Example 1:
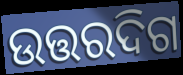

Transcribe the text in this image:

ଉତ୍ତରଦିଗ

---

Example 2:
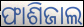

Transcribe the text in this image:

ଫାଶିଜାଲ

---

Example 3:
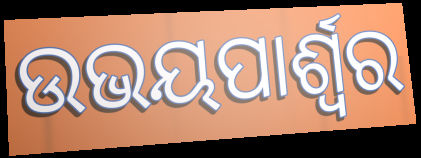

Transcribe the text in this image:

ଉଭୟପାର୍ଶ୍ୱର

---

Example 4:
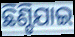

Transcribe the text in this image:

ଛିଣ୍ଡିଯାଇ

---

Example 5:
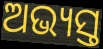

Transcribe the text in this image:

ଅଭ୍ୟସ୍ତ